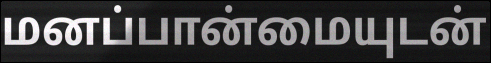
மனப்பான்மையுடன்